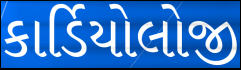
કાર્ડિયોલોજી